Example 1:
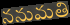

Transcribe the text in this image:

ననుమతి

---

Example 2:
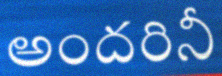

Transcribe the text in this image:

అందరినీ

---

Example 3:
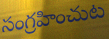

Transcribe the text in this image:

సంగ్రహించుట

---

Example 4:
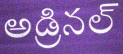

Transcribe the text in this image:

అడ్రినల్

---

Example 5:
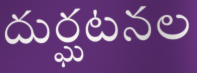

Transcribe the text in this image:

దుర్ఘటనల